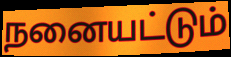
நனையட்டும்